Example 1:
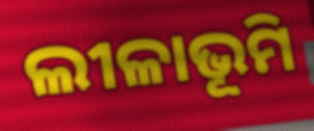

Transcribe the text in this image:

ଲୀଳାଭୂମି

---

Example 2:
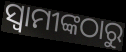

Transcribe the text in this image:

ସ୍ବାମୀଙ୍କଠାରୁ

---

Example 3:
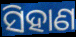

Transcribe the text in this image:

ସିହାଣ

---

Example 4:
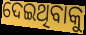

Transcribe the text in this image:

ଦେଇଥିବାକୁ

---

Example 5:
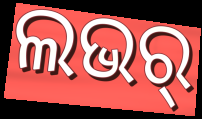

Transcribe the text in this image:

ଲଭର୍